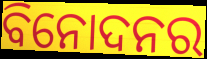
ବିନୋଦନର